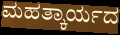
ಮಹತ್ಕಾರ್ಯದ